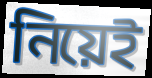
নিয়েই